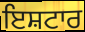
ਇਸ਼ਟਾਰ